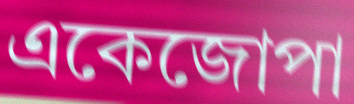
একেজোপা